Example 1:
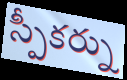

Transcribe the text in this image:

స్పీకర్ను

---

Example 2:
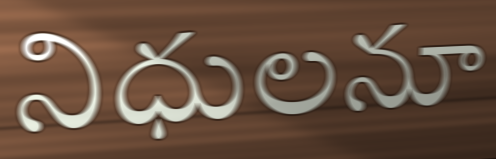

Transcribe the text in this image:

నిధులనూ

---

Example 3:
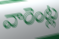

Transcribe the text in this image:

వారెంట్ల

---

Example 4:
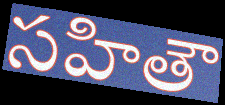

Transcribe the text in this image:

సహితౌ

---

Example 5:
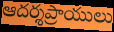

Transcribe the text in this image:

ఆదర్శప్రాయులు